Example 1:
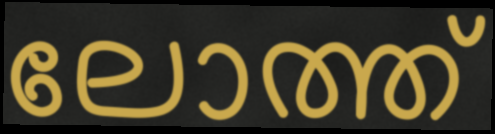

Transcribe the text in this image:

ലോത്ത്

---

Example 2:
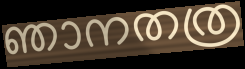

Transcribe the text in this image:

ഞാനതത്ര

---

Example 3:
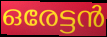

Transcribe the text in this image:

ഒരേട്ടൻ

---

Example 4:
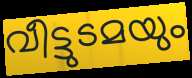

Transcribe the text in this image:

വീട്ടുടമയും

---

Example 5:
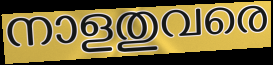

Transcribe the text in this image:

നാളതുവരെ